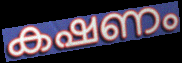
കഷണം